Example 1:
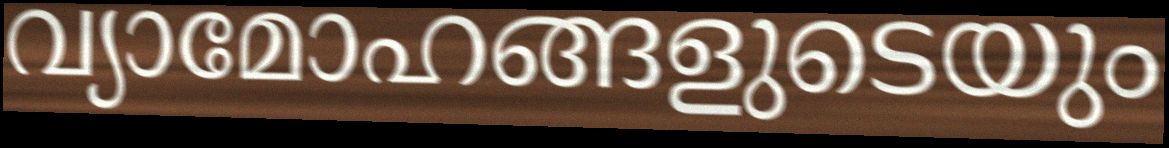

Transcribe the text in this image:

വ്യാമോഹങ്ങളുടെയും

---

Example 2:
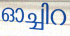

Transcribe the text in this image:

ഓച്ചിറ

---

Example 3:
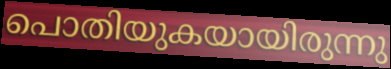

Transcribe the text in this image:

പൊതിയുകയായിരുന്നു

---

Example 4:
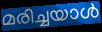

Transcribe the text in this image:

മരിച്ചയാൾ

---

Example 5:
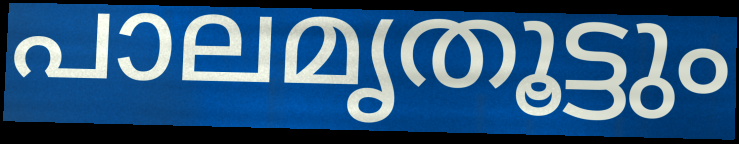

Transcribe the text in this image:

പാലമൃതൂട്ടും